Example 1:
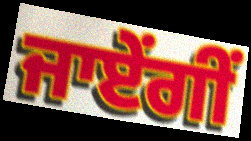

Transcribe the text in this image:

ਜਾਏਂਗੀਂ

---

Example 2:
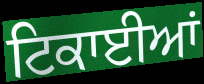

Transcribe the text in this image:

ਟਿਕਾਈਆਂ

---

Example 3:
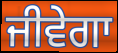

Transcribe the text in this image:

ਜੀਵੇਗਾ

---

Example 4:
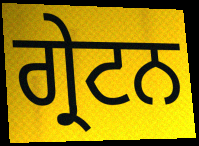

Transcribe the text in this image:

ਗ੍ਰੇਟਨ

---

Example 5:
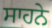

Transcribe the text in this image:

ਸਾਹਨੇ